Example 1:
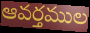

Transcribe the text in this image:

ఆవర్తముల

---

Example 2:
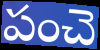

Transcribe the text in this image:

పంచె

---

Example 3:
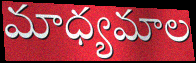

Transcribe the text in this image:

మాధ్యమాల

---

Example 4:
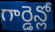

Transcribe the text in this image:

గార్డెన్లో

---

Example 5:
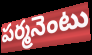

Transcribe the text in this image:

పర్మనెంటు